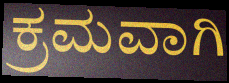
ಕ್ರಮವಾಗಿ